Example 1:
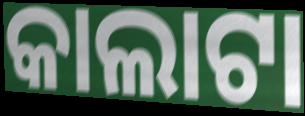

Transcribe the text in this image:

କାଲାଟା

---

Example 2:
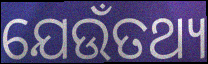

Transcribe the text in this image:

ଯେଉଁତଥ୍ୟ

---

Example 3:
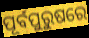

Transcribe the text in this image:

ପୂର୍ବପୁରୁଷରେ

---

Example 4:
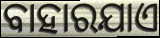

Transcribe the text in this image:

ବାହାରଯାଏ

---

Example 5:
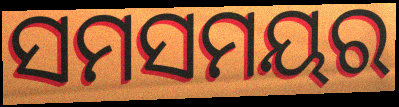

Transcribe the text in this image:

ସମସମୟର